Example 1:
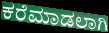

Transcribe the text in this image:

ಕರೆಮಾಡಲಾಗಿ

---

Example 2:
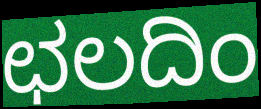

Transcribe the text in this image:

ಛಲದಿಂ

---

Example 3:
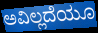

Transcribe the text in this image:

ಅವಿಲ್ಲದೆಯೂ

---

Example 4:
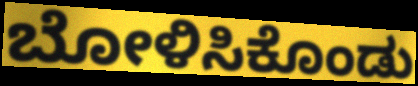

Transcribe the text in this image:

ಬೋಳಿಸಿಕೊಂಡು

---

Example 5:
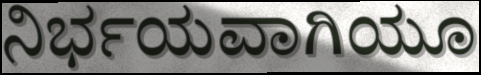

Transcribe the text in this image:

ನಿರ್ಭಯವಾಗಿಯೂ